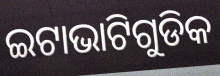
ଇଟାଭାଟିଗୁଡିକ